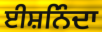
ਈਸ਼ਨਿੰਦਾ